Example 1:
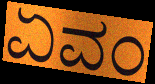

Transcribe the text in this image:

ಏವಂ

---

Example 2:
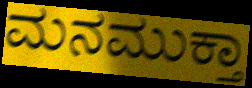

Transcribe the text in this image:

ಮನಮುಕ್ತಾ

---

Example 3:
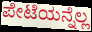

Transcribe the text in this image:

ಪೇಟೆಯನ್ನೆಲ್ಲ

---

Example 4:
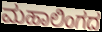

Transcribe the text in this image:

ಮಹಾಲಿಂಗದ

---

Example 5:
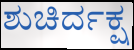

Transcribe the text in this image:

ಶುಚಿರ್ದಕ್ಷ